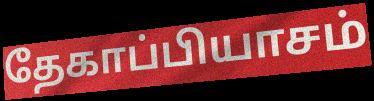
தேகாப்பியாசம்